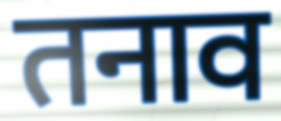
तनाव